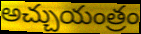
అచ్చుయంత్రం